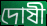
দোষী